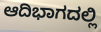
ಆದಿಭಾಗದಲ್ಲಿ